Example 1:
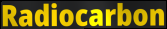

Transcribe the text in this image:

Radiocarbon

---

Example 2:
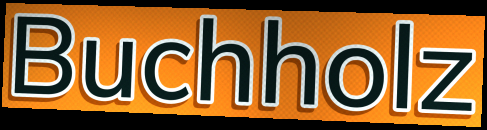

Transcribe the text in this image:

Buchholz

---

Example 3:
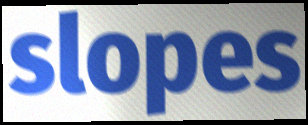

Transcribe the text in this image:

slopes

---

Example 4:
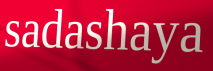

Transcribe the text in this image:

sadashaya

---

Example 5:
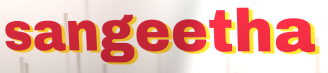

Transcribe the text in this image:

sangeetha